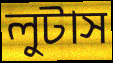
লুটাস